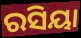
ରସିୟା